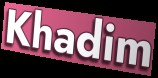
Khadim